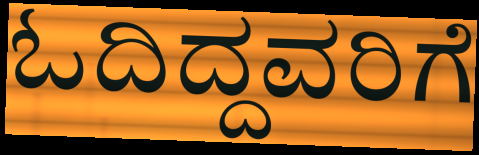
ಓದಿದ್ದವರಿಗೆ